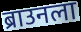
ब्राउनला